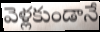
వెళ్లకుండానే